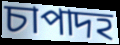
চাপাদহ